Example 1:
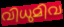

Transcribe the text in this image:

വിധുമിവ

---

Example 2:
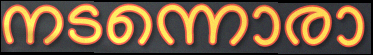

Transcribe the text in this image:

നടന്നൊരാ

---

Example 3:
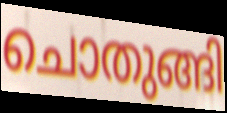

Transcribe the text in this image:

ചൊതുങ്ങി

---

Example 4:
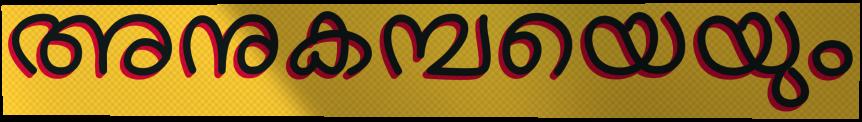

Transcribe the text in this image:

അനുകമ്പയെയും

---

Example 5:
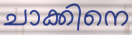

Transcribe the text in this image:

ചാക്കിനെ